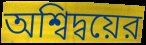
অশ্বিদ্বয়ের